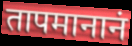
तापमानानं